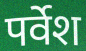
पर्वेश